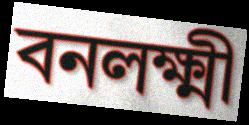
বনলক্ষ্মী